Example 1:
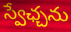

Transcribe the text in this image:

స్వేఛ్చను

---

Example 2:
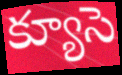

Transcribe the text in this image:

క్యూసె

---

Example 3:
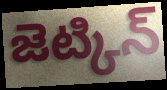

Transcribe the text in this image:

జెట్కిన్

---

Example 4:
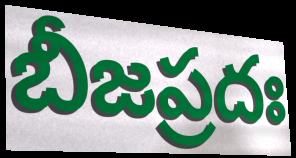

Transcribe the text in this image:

బీజప్రదః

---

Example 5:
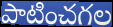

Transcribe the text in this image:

పాటించగల